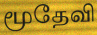
மூதேவி